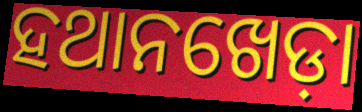
ହଥାନଖେଡ଼ା